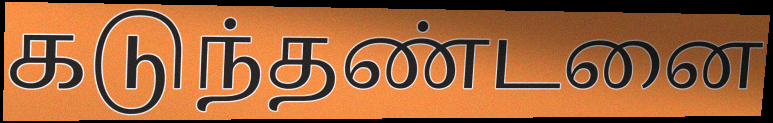
கடுந்தண்டனை